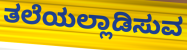
ತಲೆಯಲ್ಲಾಡಿಸುವ